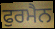
ਫੁਰਮੈਨ